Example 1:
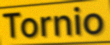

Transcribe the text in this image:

Tornio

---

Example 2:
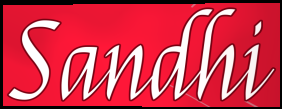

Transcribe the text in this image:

Sandhi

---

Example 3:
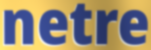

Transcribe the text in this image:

netre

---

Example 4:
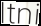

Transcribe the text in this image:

Itni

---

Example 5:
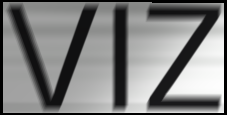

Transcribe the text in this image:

VIZ